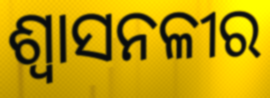
ଶ୍ୱାସନଳୀର